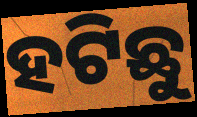
ହଟିଛୁ